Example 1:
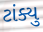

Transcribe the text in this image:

ટાંક્યુ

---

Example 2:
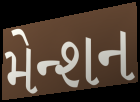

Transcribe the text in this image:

મેન્શન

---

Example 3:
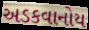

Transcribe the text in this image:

અડકવાનોય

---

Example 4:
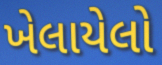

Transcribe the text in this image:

ખેલાયેલો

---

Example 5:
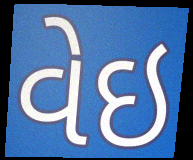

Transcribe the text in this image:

વેઇ